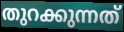
തുറക്കുന്നത്